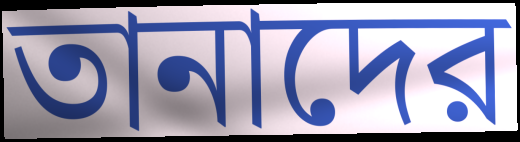
তানাদের